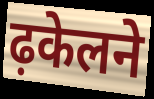
ढ़केलने